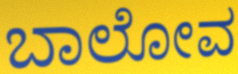
ಬಾಲೋವ